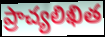
ప్రాచ్యలిఖిత